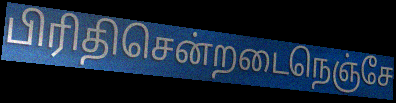
பிரிதிசென்றடைநெஞ்சே